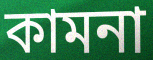
কামনা